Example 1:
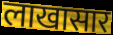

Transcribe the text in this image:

लाखासार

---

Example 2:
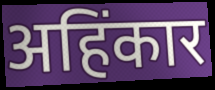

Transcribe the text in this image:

अहिंकार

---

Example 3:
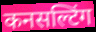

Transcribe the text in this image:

कनसल्टिंग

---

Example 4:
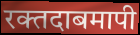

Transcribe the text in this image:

रक्तदाबमापी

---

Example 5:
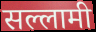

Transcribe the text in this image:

सल्लामी